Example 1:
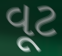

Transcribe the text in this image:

વૂટ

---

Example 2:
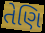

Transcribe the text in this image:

તેણિ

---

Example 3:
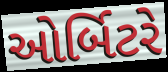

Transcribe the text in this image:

ઓર્બિટરે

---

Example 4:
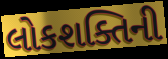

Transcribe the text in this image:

લોકશક્તિની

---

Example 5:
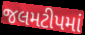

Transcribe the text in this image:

જલમટીપમાં